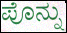
ಪೊನ್ನು